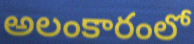
అలంకారంలో